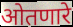
ओतणारे